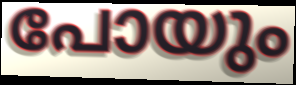
പോയും